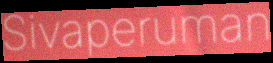
Sivaperuman